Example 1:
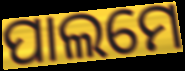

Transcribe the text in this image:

ପାଲମେ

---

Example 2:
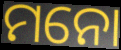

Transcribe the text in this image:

ମନୋ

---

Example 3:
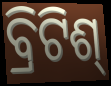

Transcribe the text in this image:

ବ୍ରିଟିଶ୍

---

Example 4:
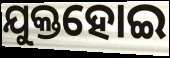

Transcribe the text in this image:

ଯୁକ୍ତହୋଇ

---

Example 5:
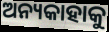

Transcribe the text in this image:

ଅନ୍ୟକାହାକୁ